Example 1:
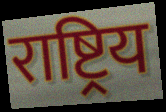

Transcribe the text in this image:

राष्ट्रिय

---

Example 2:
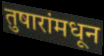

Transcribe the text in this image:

तुषारांमधून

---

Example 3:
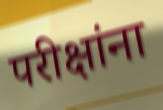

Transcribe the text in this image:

परीक्षांना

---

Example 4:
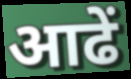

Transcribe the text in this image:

आढें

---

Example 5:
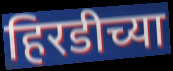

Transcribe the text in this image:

हिरडीच्या